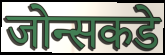
जोन्सकडे